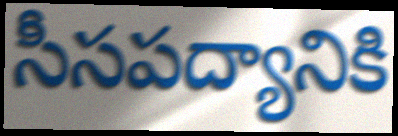
సీసపద్యానికి